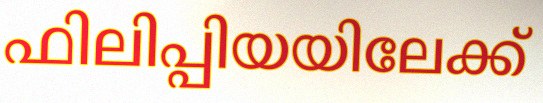
ഫിലിപ്പിയയിലേക്ക്